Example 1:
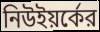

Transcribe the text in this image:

নিউইয়র্কের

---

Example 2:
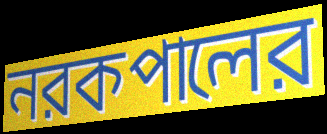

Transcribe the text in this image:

নরকপালের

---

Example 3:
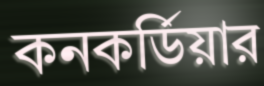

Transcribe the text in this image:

কনকর্ডিয়ার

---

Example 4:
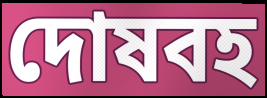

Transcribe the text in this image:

দোষবহ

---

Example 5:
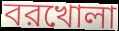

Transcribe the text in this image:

বরখোলা